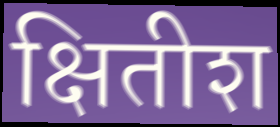
क्षितीश